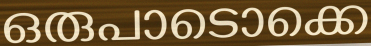
ഒരുപാടൊക്കെ